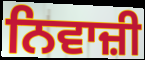
ਨਿਵਾਜ਼ੀ